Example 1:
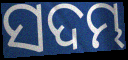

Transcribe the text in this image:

ସଦମ୍ଭ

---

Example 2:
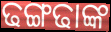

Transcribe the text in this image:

ଢଙ୍ଗଢାଙ୍କ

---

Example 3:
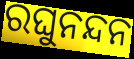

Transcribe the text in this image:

ରଘୁନନ୍ଦନ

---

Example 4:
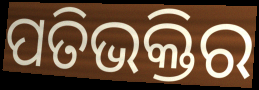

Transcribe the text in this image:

ପତିଭକ୍ତିର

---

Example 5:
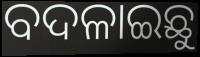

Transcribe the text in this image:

ବଦଳାଇଛୁ